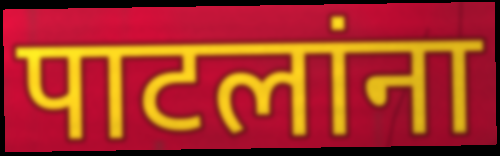
पाटलांना